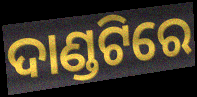
ଦାଣ୍ଡଟିରେ